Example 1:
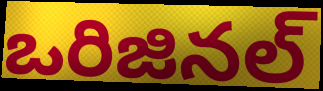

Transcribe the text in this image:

ఒరిజినల్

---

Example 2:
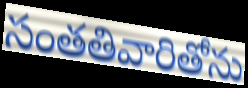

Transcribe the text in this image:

సంతతివారితోను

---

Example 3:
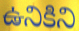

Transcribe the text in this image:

ఉనికిని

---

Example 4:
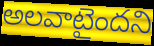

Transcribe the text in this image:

అలవాటైందని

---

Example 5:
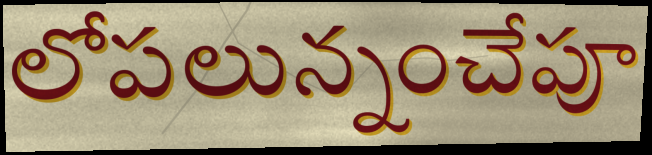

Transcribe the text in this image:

లోపలున్నంచేపూ